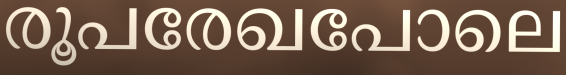
രൂപരേഖപോലെ